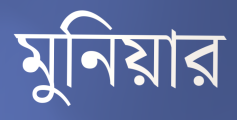
মুনিয়ার